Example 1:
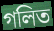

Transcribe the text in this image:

গলিত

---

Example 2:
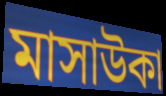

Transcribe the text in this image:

মাসাউকা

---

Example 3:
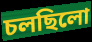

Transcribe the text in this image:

চলছিলো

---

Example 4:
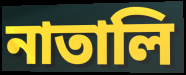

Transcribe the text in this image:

নাতালি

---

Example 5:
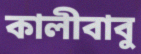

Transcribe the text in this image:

কালীবাবু